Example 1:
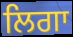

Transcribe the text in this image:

ਲਿਗਾ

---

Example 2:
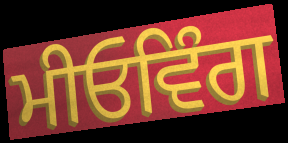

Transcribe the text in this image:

ਮੀਓਵਿੰਗ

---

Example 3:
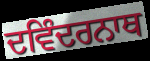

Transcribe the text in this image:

ਦਵਿੰਦਰਨਾਥ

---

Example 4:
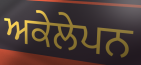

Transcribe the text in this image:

ਅਕੇਲੇਪਨ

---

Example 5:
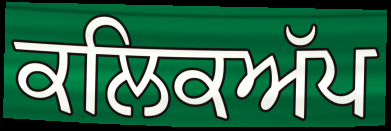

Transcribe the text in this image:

ਕਲਿਕਅੱਪ